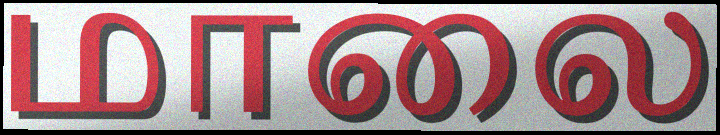
மாலை